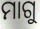
ମାଗୁ